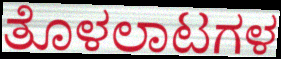
ತೊಳಲಾಟಗಳ